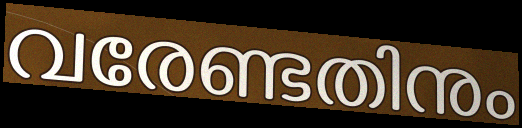
വരേണ്ടതിനും